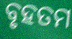
ବୃହତମ